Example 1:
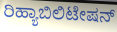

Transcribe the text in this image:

ರಿಹ್ಯಾಬಿಲಿಟೇಷನ್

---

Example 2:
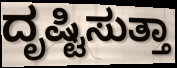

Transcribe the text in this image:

ದೃಷ್ಟಿಸುತ್ತಾ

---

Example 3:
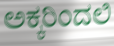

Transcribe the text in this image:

ಅಕ್ಕರಿಂದಲಿ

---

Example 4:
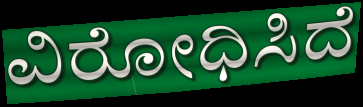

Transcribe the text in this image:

ವಿರೋಧಿಸಿದೆ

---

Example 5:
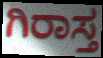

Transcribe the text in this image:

ಗಿರಾಸ್ತ